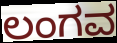
ಲಂಗವ